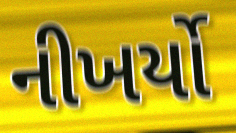
નીખર્યો